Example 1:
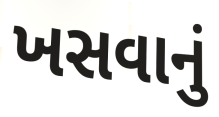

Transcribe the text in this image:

ખસવાનું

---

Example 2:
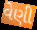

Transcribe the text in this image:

વેણી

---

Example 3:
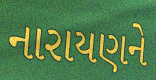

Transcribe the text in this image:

નારાયણને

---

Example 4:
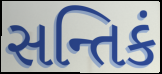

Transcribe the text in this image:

સન્તિકં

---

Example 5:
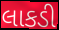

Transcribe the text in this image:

લાકડી